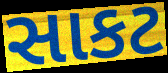
સાકટ